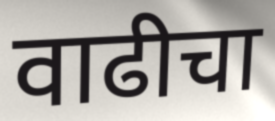
वाढीचा